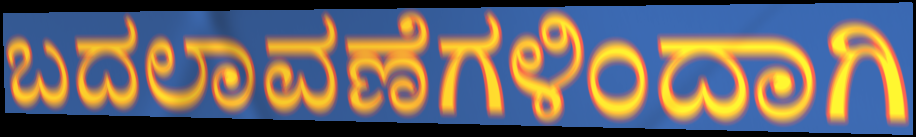
ಬದಲಾವಣೆಗಳಿಂದಾಗಿ